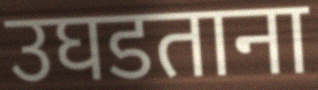
उघडताना